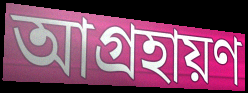
আগ্রহায়ণ